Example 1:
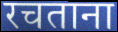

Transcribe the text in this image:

रचताना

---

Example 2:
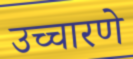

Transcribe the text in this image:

उच्चारणे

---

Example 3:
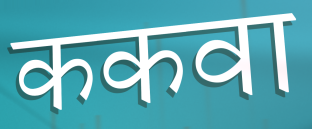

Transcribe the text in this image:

ककवा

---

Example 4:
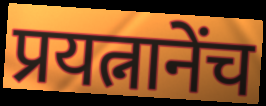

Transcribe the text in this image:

प्रयत्नानेंच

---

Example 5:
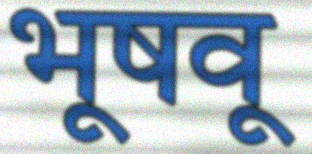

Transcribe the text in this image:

भूषवू